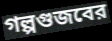
গল্পগুজবের